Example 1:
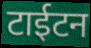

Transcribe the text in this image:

टाईटन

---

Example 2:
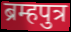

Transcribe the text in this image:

ब्रम्हपुत्र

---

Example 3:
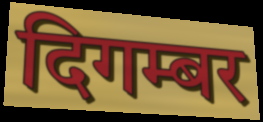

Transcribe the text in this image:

दिगम्बर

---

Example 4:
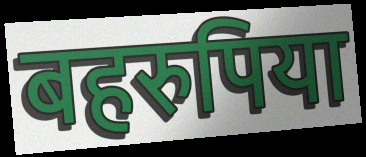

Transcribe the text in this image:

बहरुपिया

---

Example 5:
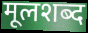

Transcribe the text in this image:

मूलशब्द